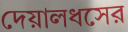
দেয়ালধসের